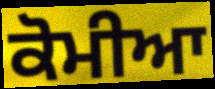
ਕੋਮੀਆ